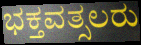
ಭಕ್ತವತ್ಸಲರು